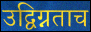
उद्विग्नताच